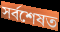
সৰ্বশেষত